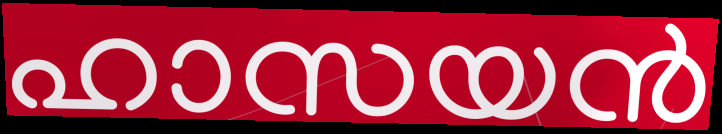
ഹാസയൻ